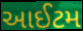
આઈટમ